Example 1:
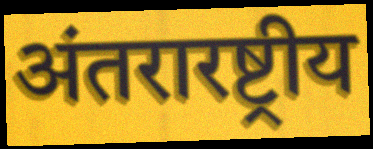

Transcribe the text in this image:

अंतरारष्ट्रीय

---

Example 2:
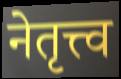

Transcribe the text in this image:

नेतृत्त्व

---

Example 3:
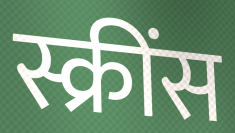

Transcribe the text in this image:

स्क्रींस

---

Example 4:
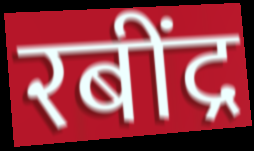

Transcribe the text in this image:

रबींद्र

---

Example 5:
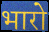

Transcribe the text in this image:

भारो